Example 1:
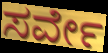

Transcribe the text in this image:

ಸರ್ವೇ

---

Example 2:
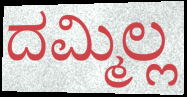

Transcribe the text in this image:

ದಮ್ಮಿಲ್ಲ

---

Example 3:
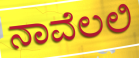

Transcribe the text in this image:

ನಾವೆಲಲಿ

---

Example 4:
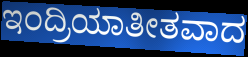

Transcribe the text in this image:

ಇಂದ್ರಿಯಾತೀತವಾದ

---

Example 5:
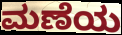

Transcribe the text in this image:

ಮಣೆಯ